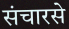
संचारसे